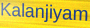
Kalanjiyam